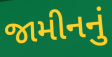
જામીનનું